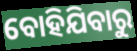
ବୋହିଯିବାରୁ